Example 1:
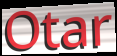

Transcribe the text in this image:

Otar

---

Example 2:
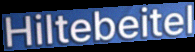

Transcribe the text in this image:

Hiltebeitel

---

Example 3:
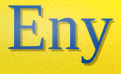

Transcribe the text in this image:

Eny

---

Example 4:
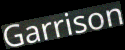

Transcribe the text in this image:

Garrison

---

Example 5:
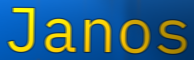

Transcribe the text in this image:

Janos